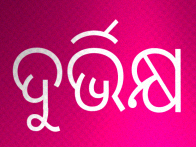
ଦୁର୍ଭିକ୍ଷ